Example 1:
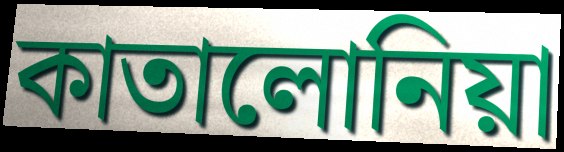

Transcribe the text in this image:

কাতালোনিয়া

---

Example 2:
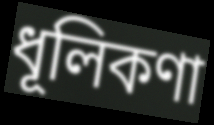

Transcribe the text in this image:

ধূলিকণা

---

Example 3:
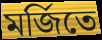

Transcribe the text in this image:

মর্জিতে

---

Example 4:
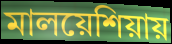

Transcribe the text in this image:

মালয়েশিয়ায়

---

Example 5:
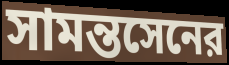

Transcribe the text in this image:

সামন্তসেনের